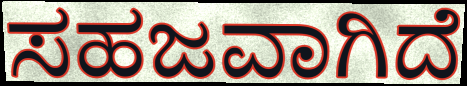
ಸಹಜವಾಗಿದೆ